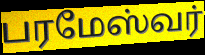
பரமேஸ்வர்